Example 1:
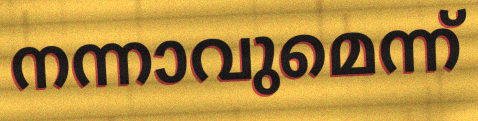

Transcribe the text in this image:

നന്നാവുമെന്ന്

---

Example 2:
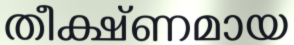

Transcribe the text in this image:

തീക്ഷ്‌ണമായ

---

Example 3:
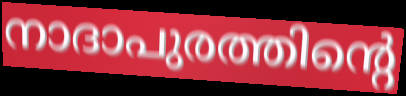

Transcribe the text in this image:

നാദാപുരത്തിന്റെ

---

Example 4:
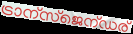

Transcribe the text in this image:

ട്രാന്സ്ജെന്ഡര്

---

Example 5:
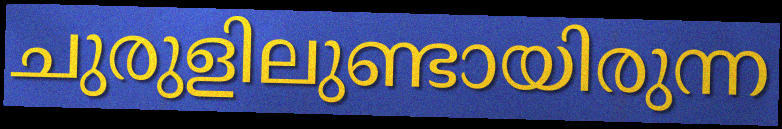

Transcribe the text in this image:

ചുരുളിലുണ്ടായിരുന്ന